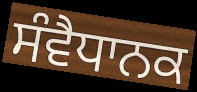
ਸੰਵੈਧਾਨਕ